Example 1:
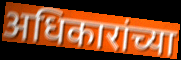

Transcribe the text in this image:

अधिकारांच्या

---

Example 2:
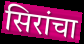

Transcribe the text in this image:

सिरांचा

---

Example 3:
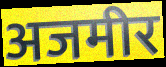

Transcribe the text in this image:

अजमीर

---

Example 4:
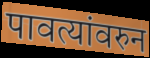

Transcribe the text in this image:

पावत्यांवरुन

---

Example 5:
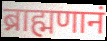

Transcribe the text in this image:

ब्राह्मणानं